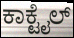
ಕಾಕ್ಟೈಲ್